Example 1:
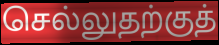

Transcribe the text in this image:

செல்லுதற்குத்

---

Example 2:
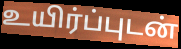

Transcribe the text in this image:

உயிர்ப்புடன்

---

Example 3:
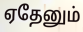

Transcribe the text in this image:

ஏதேனும்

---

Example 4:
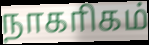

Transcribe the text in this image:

நாகரிகம்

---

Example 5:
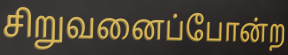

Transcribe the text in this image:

சிறுவனைப்போன்ற